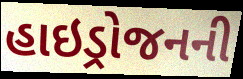
હાઇડ્રોજનની